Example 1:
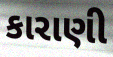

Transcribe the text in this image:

કારાણી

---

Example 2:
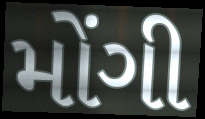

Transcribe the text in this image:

મોંગી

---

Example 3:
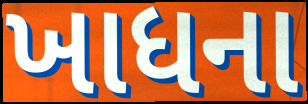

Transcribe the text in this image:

ખાધના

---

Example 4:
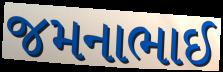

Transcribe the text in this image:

જમનાભાઈ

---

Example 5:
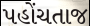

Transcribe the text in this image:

પહોંચતાજ